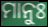
ମାନୁଃ